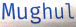
Mughul